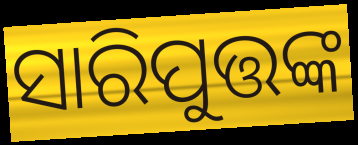
ସାରିପୁତ୍ତଙ୍କ